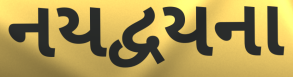
નયદ્વયના